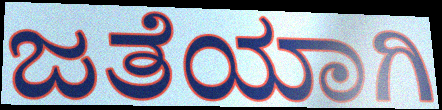
ಜತೆಯಾಗಿ